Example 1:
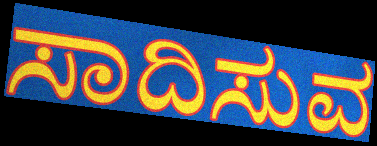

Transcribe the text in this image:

ಸಾದಿಸುವ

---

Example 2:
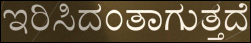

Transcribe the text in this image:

ಇರಿಸಿದಂತಾಗುತ್ತದೆ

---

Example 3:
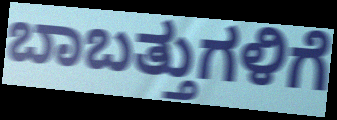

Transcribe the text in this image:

ಬಾಬತ್ತುಗಳಿಗೆ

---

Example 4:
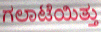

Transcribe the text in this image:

ಗಲಾಟೆಯಿತ್ತು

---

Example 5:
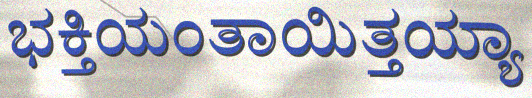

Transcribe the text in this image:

ಭಕ್ತಿಯಂತಾಯಿತ್ತಯ್ಯಾ